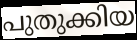
പുതുക്കിയ